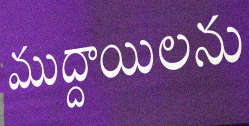
ముద్దాయిలను